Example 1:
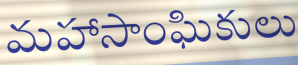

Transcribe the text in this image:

మహాసాంఘికులు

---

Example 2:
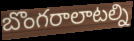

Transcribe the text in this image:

బొంగరాలాటల్ని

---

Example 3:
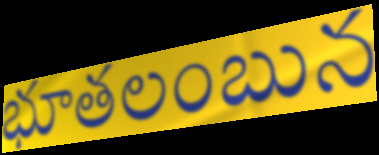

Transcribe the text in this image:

భూతలంబున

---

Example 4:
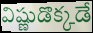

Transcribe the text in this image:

విష్ణుడొక్కడే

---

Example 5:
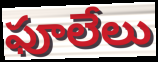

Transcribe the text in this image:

ఫూలేలు